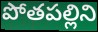
పోతపల్లిని